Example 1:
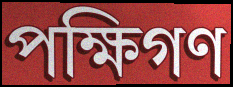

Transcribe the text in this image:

পক্ষিগণ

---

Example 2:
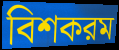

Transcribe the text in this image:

বিশকরম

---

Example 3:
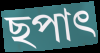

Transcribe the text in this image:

ছপাৎ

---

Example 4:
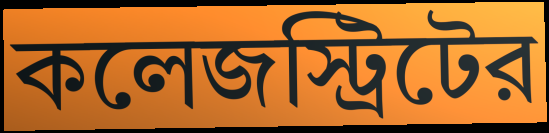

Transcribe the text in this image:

কলেজস্ট্রিটের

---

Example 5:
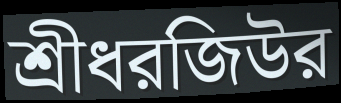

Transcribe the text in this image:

শ্রীধরজিউর